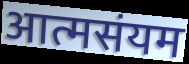
आत्मसंयम